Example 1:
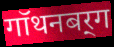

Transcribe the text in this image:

गॉथनबर्ग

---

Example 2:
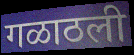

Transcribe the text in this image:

गळाठली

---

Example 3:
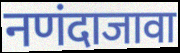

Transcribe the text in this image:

नणंदाजावा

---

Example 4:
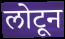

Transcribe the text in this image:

लोटून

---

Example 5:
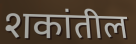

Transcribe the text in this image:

शकांतील